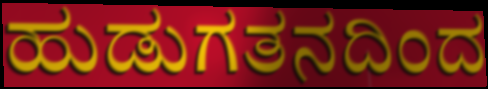
ಹುಡುಗತನದಿಂದ